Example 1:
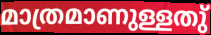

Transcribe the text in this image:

മാത്രമാണുള്ളതു്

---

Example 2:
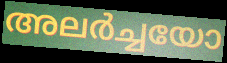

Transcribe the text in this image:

അലർച്ചയോ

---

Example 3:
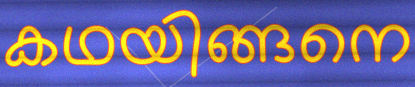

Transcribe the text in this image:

കഥയിങ്ങനെ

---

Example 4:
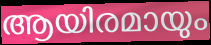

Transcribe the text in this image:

ആയിരമായും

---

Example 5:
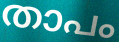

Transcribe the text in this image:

താപം